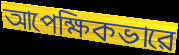
আপেক্ষিকভাৱে